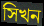
সিখন